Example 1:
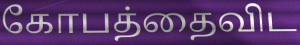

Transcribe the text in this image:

கோபத்தைவிட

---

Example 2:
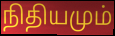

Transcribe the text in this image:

நிதியமும்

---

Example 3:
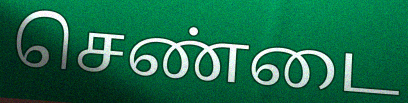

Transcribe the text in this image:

செண்டை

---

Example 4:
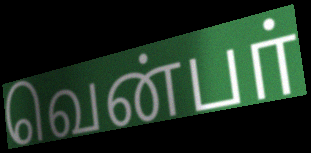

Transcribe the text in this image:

வென்பர்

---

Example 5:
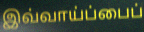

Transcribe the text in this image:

இவ்வாய்ப்பைப்